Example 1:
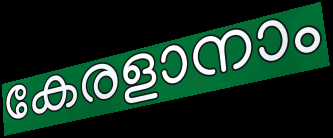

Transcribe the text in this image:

കേരളാനാം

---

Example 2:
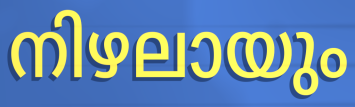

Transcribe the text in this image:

നിഴലായും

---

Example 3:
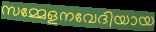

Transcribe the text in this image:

സമ്മേളനവേദിയായ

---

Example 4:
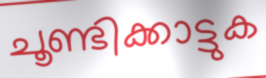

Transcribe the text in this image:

ചൂണ്ടിക്കാട്ടുക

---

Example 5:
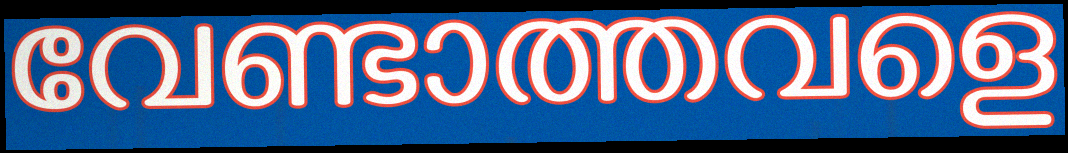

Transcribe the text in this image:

വേണ്ടാത്തവളെ